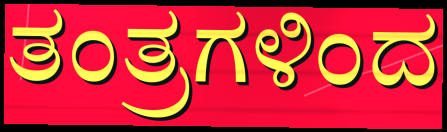
ತಂತ್ರಗಳಿಂದ